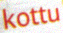
kottu